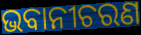
ଭବାନୀଚରଣ